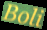
Boli